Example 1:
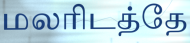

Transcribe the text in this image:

மலரிடத்தே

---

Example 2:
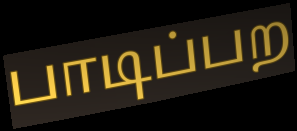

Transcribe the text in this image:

பாடிப்பற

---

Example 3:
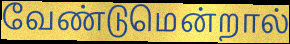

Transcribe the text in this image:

வேண்டுமென்றால்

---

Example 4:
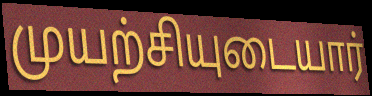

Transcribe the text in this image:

முயற்சியுடையார்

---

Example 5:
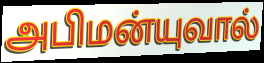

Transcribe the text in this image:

அபிமன்யுவால்